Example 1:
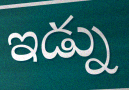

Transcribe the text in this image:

ఇడ్ను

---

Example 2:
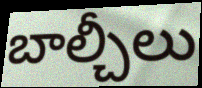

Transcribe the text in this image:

బాల్చీలు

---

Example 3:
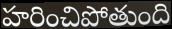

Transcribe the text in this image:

హరించిపోతుంది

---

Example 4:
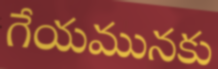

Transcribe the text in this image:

గేయమునకు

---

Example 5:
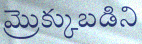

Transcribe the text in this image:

మ్రొక్కుబడిని